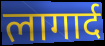
लागार्द